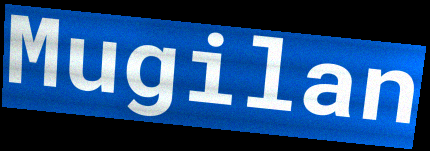
Mugilan